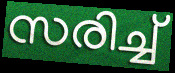
സരിച്ച്